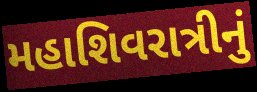
મહાશિવરાત્રીનું